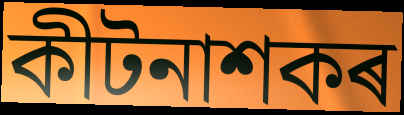
কীটনাশকৰ